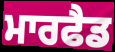
ਮਾਰਫੈਡ